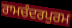
ਰਾਮਚੰਦਰਪੁਰਮ